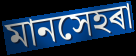
মানসেহৰা